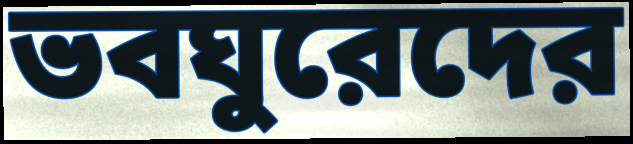
ভবঘুরেদের